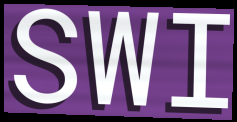
SWI